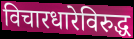
विचारधारेविरुद्ध